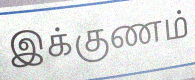
இக்குணம்